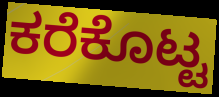
ಕರೆಕೊಟ್ಟ